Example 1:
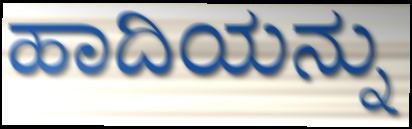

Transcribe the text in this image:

ಹಾದಿಯನ್ನು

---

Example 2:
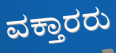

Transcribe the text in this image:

ವಕ್ತಾರರು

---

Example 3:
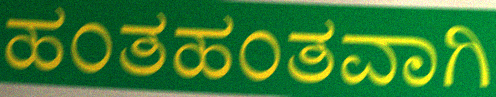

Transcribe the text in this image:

ಹಂತಹಂತವಾಗಿ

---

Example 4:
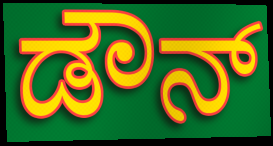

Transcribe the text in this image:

ಡೌನ್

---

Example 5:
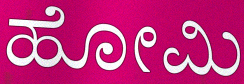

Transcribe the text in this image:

ಹೋಮಿ